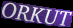
ORKUT